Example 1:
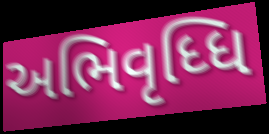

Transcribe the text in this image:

અભિવૃધ્ધિ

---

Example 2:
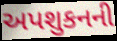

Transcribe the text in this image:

અપશુકનની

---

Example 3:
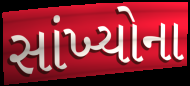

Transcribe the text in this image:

સાંખ્યોના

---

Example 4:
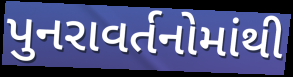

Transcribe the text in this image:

પુનરાવર્તનોમાંથી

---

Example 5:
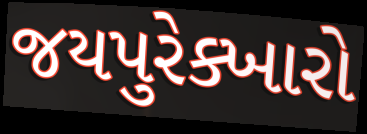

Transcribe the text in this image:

જયપુરેક્ખારો